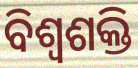
ବିଶ୍ଵଶକ୍ତି